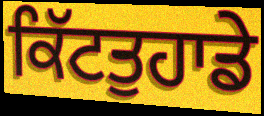
ਕਿੱਟਤੁਹਾਡੇ